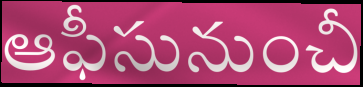
ఆఫీసునుంచీ